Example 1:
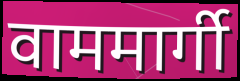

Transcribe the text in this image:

वाममार्गी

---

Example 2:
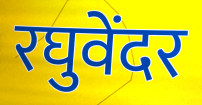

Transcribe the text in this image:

रघुवेंदर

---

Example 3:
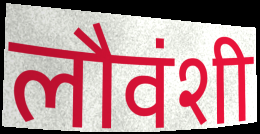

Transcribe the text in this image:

लौवंशी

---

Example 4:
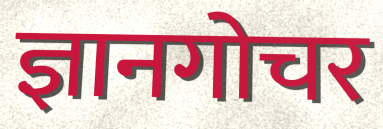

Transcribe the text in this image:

ज्ञानगोचर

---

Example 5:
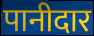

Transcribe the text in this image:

पानीदार